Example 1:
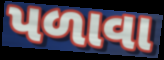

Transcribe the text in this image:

પળાવા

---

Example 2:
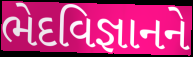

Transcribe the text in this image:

ભેદવિજ્ઞાનને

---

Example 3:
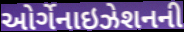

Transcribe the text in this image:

ઓર્ગેનાઇઝેશનની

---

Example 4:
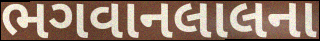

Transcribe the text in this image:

ભગવાનલાલના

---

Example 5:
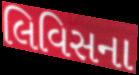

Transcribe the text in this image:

લિવિસના